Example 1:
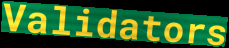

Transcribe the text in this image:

Validators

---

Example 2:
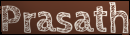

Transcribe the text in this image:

Prasath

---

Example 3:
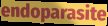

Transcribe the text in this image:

endoparasite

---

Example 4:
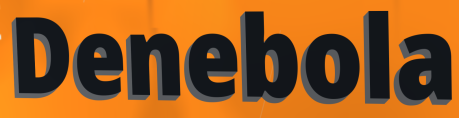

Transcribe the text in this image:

Denebola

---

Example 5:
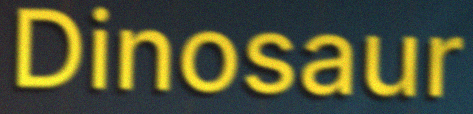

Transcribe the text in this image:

Dinosaur